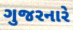
ગુજરનારે